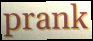
prank